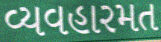
વ્યવહારમત